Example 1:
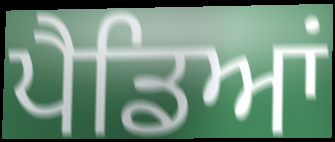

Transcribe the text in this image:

ਪੈਡਿਆਂ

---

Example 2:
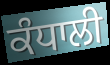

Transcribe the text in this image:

ਕੰਧਾਲੀ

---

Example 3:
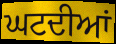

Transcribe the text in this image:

ਘਟਦੀਆਂ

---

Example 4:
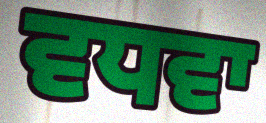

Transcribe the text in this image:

ਵਧਵਾ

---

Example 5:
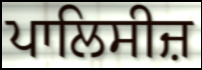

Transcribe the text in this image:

ਪਾਲਿਸੀਜ਼